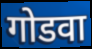
गोडवा